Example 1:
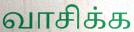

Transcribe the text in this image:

வாசிக்க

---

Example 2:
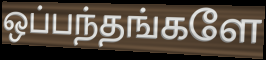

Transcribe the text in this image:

ஒப்பந்தங்களே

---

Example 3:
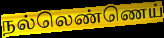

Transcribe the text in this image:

நல்லெண்ணெய்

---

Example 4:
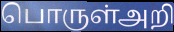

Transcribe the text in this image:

பொருள்அறி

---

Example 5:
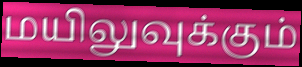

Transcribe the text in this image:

மயிலுவுக்கும்